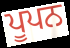
ਪੂਪਨ